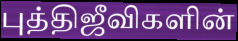
புத்திஜீவிகளின்